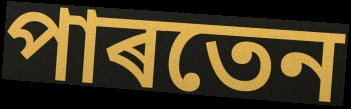
পাৰতেন